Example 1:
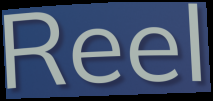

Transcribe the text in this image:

Reel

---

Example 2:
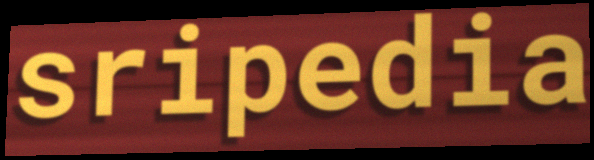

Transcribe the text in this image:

sripedia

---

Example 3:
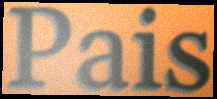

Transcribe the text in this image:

Pais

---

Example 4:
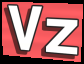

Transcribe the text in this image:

Vz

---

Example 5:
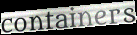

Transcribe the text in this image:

containers